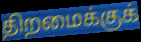
திறமைக்குக்